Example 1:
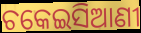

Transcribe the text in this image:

ଚକେଇସିଆଣୀ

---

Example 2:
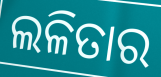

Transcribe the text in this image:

ଲଳିତାର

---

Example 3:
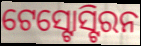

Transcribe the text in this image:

ଟେସ୍ଟୋସ୍ଟିରନ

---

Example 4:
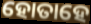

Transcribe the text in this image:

ହୋତାହେ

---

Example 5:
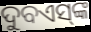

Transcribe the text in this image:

ଦୁବଏସ୍‌ଙ୍କ